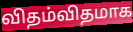
விதம்விதமாக